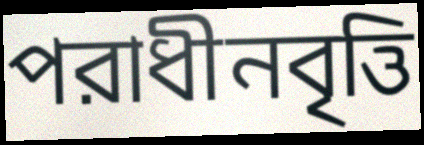
পরাধীনবৃত্তি